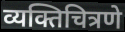
व्यक्तिचित्रणे